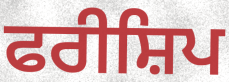
ਫਰੀਸ਼ਿਪ